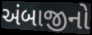
અંબાજીનો